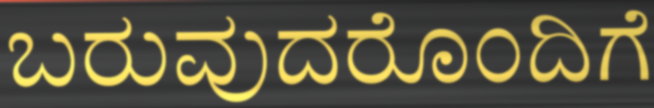
ಬರುವುದರೊಂದಿಗೆ